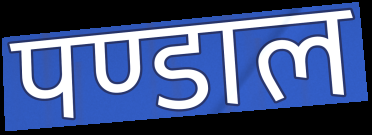
पण्डाल